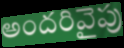
అందరివైపు